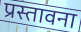
प्रस्तावना